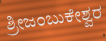
ಶ್ರೀಜಂಬುಕೇಶ್ವರ